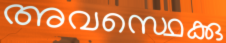
അവസ്ഥെക്കു